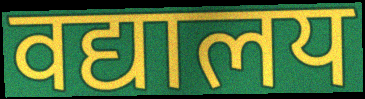
वद्यालय